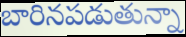
బారినపడుతున్నా